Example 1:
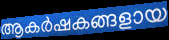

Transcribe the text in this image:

ആകർഷകങ്ങളായ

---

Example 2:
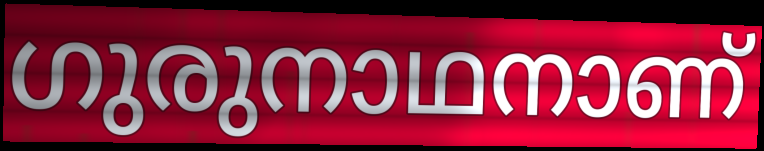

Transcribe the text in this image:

ഗുരുനാഥനാണ്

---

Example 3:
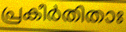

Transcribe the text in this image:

പ്രകീർതിതാഃ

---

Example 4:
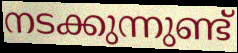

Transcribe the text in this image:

നടക്കുന്നുണ്ട്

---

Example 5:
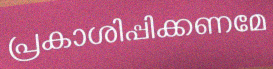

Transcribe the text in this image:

പ്രകാശിപ്പിക്കണമേ